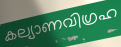
കല്യാണവിഗ്രഹ